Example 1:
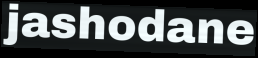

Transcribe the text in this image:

jashodane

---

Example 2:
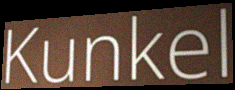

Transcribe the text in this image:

Kunkel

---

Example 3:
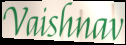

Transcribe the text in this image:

Vaishnav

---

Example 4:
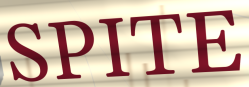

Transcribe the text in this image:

SPITE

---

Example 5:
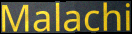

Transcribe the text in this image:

Malachi